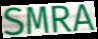
SMRA